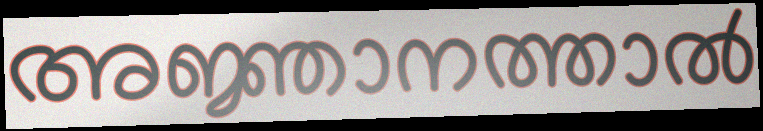
അജ്ഞാനത്താൽ